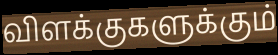
விளக்குகளுக்கும்